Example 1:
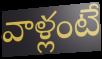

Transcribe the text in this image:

వాళ్లంటే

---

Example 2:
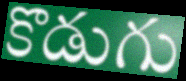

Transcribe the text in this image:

కొడుగు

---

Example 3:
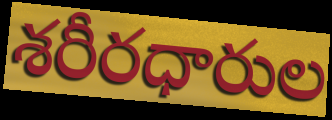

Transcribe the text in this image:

శరీరధారుల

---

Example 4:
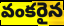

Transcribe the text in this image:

వంకరైన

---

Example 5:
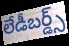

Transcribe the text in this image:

లేడీబర్డ్స్